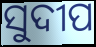
ସୁଦୀପ